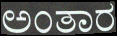
ಅಂತಾರ